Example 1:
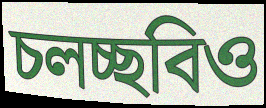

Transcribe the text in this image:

চলচ্ছবিও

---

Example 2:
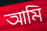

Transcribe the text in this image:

আমি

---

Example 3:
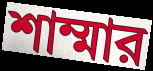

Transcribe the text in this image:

শাম্মার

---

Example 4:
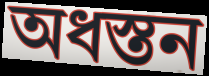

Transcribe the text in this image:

অধস্তন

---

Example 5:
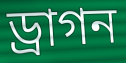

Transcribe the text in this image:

ড্রাগন